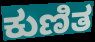
ಕುಣಿತ